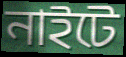
নাইটে